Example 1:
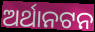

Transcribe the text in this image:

ଅର୍ଥାନଟନ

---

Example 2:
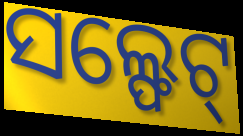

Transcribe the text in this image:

ସଲ୍ଫେଟ୍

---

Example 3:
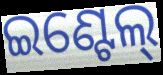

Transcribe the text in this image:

ଇଣ୍ଟେଲ୍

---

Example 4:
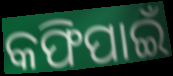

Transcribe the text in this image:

କଫିପାଇଁ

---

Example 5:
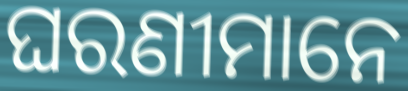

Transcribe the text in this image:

ଘରଣୀମାନେ